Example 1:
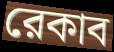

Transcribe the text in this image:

রেকাব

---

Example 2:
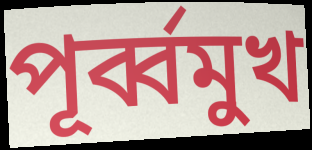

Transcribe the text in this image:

পূর্ব্বমুখ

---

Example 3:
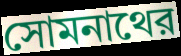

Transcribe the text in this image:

সোমনাথের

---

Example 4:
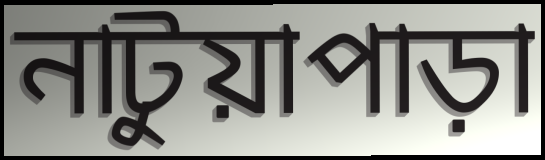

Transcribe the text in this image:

নাটুয়াপাড়া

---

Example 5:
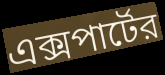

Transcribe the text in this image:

এক্সপার্টের